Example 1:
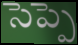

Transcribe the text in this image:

సెప్పె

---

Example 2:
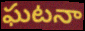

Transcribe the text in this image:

ఘటనా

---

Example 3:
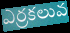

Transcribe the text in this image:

ఎర్రకలువ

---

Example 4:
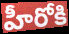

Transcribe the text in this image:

హీరోకి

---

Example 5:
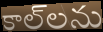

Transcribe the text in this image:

కాల్‌లను